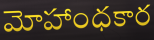
మోహాంధకార